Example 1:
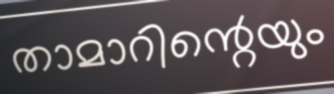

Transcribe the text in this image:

താമാറിന്റെയും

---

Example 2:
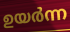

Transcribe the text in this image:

ഉയർന്ന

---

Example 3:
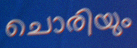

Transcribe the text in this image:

ചൊരിയും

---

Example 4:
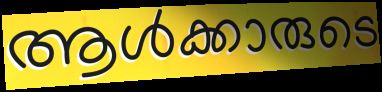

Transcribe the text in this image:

ആൾക്കാരുടെ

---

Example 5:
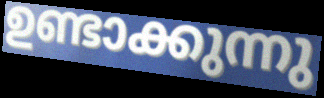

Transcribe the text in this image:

ഉണ്ടാക്കുന്നു